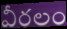
వీరలం